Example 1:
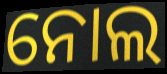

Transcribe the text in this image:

ନୋଲ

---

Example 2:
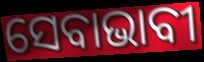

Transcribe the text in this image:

ସେବାଭାବୀ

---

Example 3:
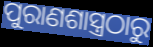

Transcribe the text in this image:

ପୁରାଣଶାସ୍ତ୍ରଠାରୁ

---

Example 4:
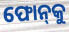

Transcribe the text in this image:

ଫୋନ୍‌କୁ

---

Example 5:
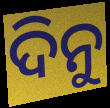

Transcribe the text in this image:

ଦିନୁ